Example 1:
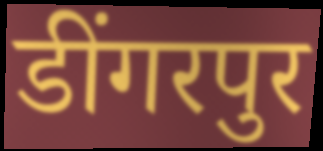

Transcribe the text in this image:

डींगरपुर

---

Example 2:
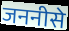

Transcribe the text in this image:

जननीसे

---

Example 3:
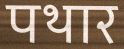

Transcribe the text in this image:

पथार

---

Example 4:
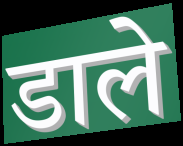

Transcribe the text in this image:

डाले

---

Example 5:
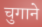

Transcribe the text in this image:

चुगाने